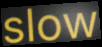
slow